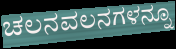
ಚಲನವಲನಗಳನ್ನೂ